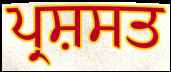
ਪ੍ਰਸ਼ਸਤ